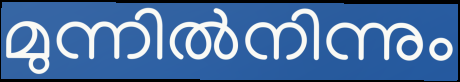
മുന്നിൽനിന്നും